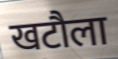
खटौला